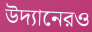
উদ্যানেরও